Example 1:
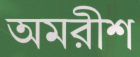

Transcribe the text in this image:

অমরীশ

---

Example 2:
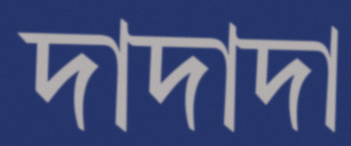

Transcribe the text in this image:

দাদাদা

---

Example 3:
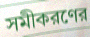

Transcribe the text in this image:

সমীকরণের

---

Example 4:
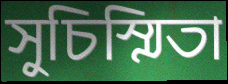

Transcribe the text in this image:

সুচিস্মিতা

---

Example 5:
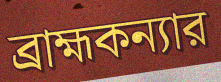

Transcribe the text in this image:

ব্রাহ্মকন্যার